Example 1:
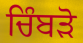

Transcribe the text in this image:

ਚਿੰਬੜੋ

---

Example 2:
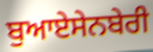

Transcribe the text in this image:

ਬੁਆਏਸੇਨਬੇਰੀ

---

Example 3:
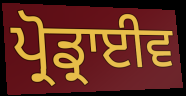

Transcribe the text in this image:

ਪ੍ਰੋਡ੍ਰਾਈਵ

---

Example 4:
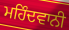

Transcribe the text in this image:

ਮਹਿੰਦਵਾਨੀ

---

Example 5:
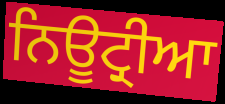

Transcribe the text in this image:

ਨਿਊਟ੍ਰੀਆ